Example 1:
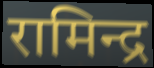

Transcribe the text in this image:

रामिन्द्र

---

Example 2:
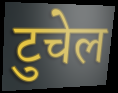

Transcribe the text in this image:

टुचेल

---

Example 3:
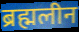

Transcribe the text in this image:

ब्रह्मलीन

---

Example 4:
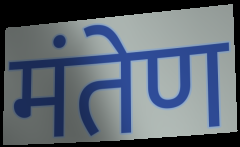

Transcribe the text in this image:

मंतेण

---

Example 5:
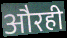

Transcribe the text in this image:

औरही